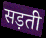
सड़ती